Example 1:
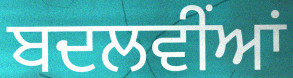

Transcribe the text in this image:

ਬਦਲਵੀਂਆਂ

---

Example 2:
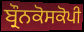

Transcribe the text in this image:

ਬ੍ਰੌਨਕੋਸਕੋਪੀ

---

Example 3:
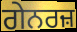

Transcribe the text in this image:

ਗੇਨਰਜ਼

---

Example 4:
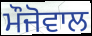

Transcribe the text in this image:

ਮੌਜੋਵਾਲ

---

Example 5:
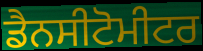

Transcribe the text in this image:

ਡੈਨਸੀਟੋਮੀਟਰ